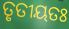
ତୃତୀୟତଃ